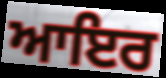
ਆਇਰ